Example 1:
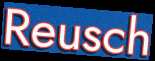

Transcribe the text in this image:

Reusch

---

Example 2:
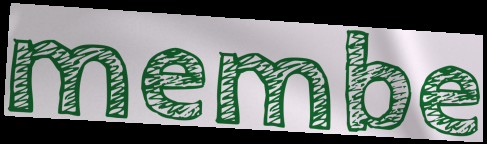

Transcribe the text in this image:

membe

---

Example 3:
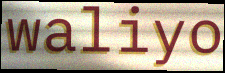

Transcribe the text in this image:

waliyo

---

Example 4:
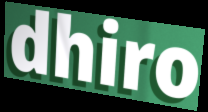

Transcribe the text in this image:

dhiro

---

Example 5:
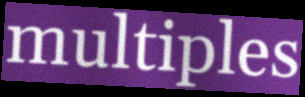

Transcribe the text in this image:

multiples